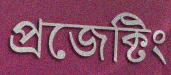
প্রজেক্টিং